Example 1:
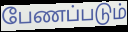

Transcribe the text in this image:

பேணப்படும்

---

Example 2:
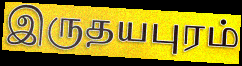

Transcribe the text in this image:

இருதயபுரம்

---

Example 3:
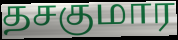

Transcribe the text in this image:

தசகுமார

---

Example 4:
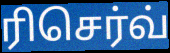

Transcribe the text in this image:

ரிசெர்வ்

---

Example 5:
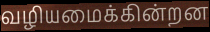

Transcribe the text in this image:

வழியமைக்கின்றன